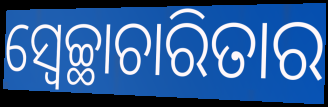
ସ୍ୱେଚ୍ଛାଚାରିତାର